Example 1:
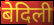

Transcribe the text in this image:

बेदिली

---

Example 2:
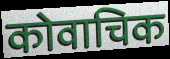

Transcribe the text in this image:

कोवाचिक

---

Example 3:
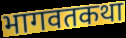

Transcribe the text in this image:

भागवतकथा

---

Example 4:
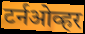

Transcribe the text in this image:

टर्नओव्हर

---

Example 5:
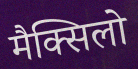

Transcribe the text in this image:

मैक्सिलो